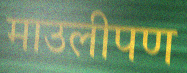
माउलीपण